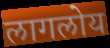
लागलोय